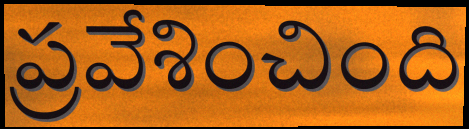
ప్రవేశించింది